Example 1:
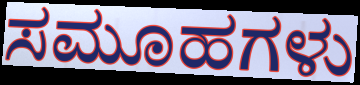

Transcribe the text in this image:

ಸಮೂಹಗಳು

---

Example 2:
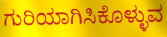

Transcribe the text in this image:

ಗುರಿಯಾಗಿಸಿಕೊಳ್ಳುವ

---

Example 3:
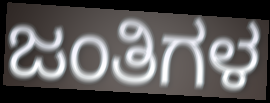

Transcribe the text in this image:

ಜಂತಿಗಳ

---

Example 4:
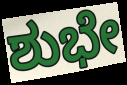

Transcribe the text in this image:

ಶುಭೇ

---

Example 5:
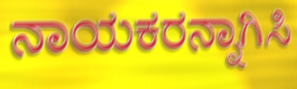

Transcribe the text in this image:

ನಾಯಕರನ್ನಾಗಿಸಿ